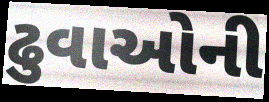
ઢુવાઓની